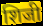
शिजी